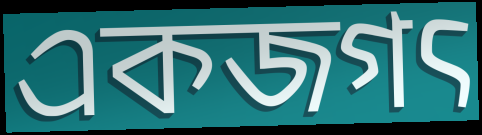
একজগৎ